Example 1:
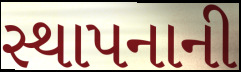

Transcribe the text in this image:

સ્થાપનાની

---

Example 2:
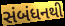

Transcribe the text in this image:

સંબંધનથી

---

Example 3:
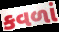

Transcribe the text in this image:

કવળાં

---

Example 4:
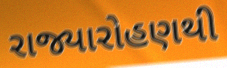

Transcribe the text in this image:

રાજ્યારોહણથી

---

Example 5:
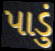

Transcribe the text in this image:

પાડું